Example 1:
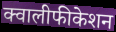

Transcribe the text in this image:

क्वालीफीकेशन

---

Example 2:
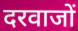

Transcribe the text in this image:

दरवाजों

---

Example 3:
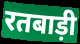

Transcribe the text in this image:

रतबाड़ी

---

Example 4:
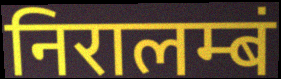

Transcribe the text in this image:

निरालम्बं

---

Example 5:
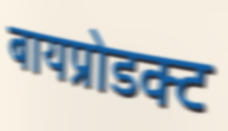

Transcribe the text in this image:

बायप्रोडक्ट